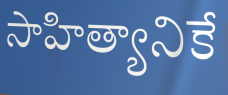
సాహిత్యానికే